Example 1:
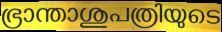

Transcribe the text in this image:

ഭ്രാന്താശുപത്രിയുടെ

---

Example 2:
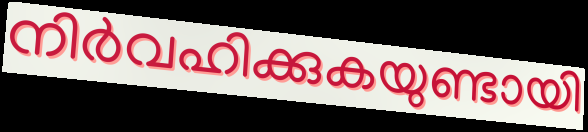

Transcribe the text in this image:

നിർവഹിക്കുകയുണ്ടായി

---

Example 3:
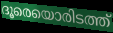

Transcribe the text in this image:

ദൂരെയൊരിടത്ത്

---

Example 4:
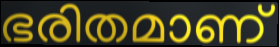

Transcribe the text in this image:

ഭരിതമാണ്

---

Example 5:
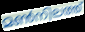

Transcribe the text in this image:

മൺനിലത്ത്